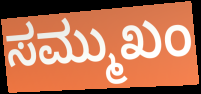
ಸಮ್ಮುಖಂ